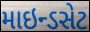
માઇન્ડસેટ